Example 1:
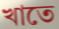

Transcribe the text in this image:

খাতে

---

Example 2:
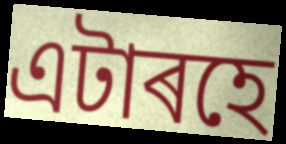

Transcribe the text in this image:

এটাৰহে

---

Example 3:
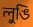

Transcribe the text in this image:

লুঙি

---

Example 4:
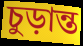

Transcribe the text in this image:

চুড়ান্ত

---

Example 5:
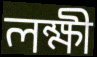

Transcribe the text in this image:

লক্ষী